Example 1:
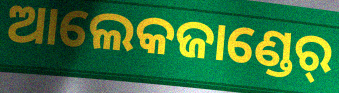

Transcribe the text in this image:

ଆଲେକଜାଣ୍ଡେର୍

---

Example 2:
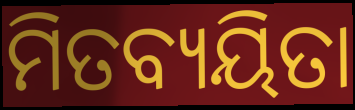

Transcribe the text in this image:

ମିତବ୍ୟୟିତା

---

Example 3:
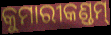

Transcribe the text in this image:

କୁମାରୀକଣ୍ଡମ୍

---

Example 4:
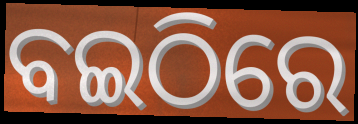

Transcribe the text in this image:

ବଇଠିରେ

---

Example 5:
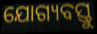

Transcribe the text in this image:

ଯୋଗ୍ୟବସ୍ତୁ